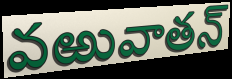
వఱువాతన్